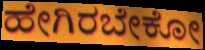
ಹೇಗಿರಬೇಕೋ